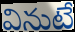
వినుటే